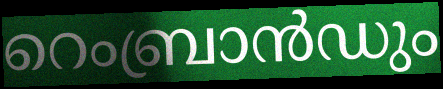
റെംബ്രാൻഡും